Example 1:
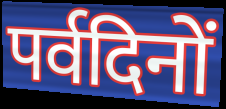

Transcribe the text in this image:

पर्वदिनों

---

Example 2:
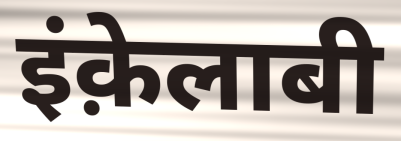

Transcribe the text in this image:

इंक़ेलाबी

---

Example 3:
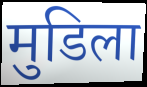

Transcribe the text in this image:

मुडिला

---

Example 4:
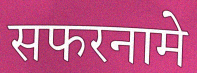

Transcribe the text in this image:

सफरनामे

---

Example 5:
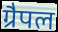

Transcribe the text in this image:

ग्रैपल